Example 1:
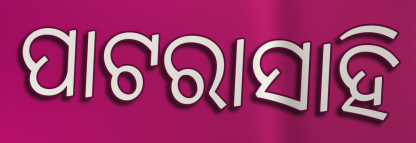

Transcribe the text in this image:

ପାଟରାସାହି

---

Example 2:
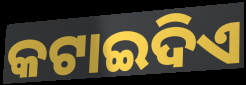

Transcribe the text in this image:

କଟାଇଦିଏ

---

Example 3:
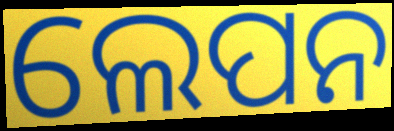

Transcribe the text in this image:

ଲେପନ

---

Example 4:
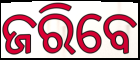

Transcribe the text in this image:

ଜରିବେ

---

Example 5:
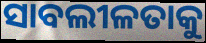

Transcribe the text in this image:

ସାବଲୀଳତାକୁ